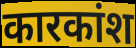
कारकांश